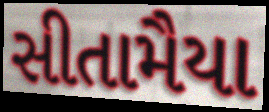
સીતામૈયા